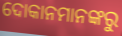
ଦୋକାନମାନଙ୍କରୁ